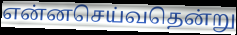
என்னசெய்வதென்று